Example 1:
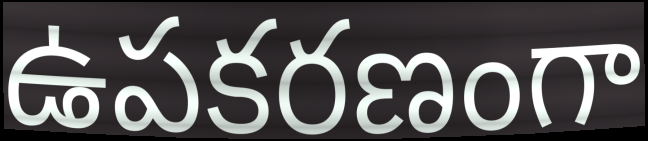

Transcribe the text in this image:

ఉపకరణంగా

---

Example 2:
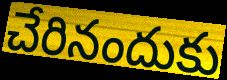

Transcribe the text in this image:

చేరినందుకు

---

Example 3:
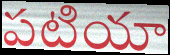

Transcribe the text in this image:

పటియా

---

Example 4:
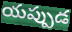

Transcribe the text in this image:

యప్పుడ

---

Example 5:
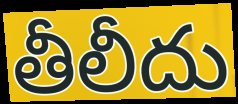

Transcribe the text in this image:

తీలీదు